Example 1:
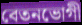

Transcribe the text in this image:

বেতনভোগী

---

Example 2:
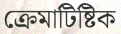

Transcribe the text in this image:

ক্রেমাটিষ্টিক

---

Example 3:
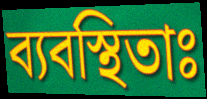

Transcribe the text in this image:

ব্যবস্থিতাঃ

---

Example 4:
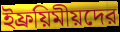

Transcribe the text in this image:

ইফ্রয়িমীয়দের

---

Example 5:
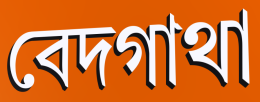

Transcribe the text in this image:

বেদগাথা